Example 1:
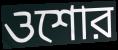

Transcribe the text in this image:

ওশোর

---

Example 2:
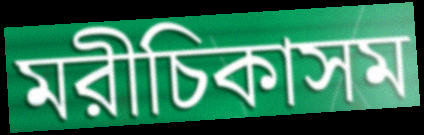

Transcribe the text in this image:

মরীচিকাসম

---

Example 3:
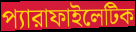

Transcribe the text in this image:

প্যারাফাইলেটিক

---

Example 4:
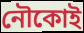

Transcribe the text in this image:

নৌকোই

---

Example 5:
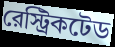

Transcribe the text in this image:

রেস্ট্রিকটেড